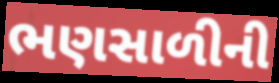
ભણસાળીની